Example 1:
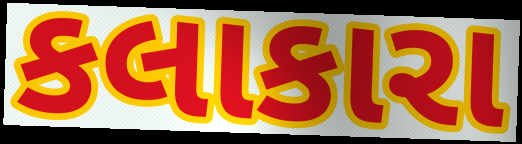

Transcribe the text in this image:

કલાકારા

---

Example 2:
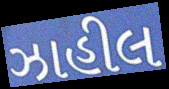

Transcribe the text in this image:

ઝાહીલ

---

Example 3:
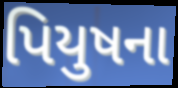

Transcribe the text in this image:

પિયુષના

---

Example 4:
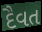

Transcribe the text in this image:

દૈવત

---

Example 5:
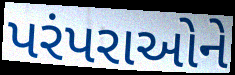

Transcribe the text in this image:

પરંપરાઓને